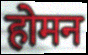
होमन